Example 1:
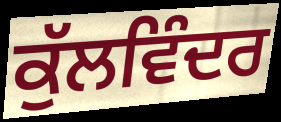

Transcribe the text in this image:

ਕੁੱਲਵਿੰਦਰ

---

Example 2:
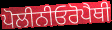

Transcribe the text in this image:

ਪੋਲੀਨੀਓਰੋਪੈਥੀ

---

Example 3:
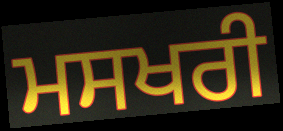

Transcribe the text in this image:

ਮਸਖਰੀ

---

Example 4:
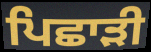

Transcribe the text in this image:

ਪਿਛਾੜੀ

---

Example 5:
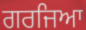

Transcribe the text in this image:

ਗਰਜਿਆ